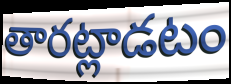
తారట్లాడటం